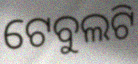
ଟେବୁଲଟି